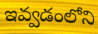
ఇవ్వడంలోని